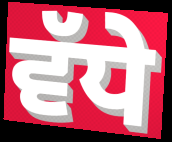
ਵੱਧੇ